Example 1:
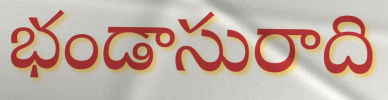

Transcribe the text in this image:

భండాసురాది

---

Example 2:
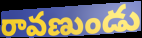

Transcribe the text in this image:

రావణుండు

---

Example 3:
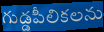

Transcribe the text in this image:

గుడ్డపీలికలను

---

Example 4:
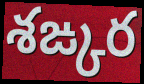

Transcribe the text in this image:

శఙ్కర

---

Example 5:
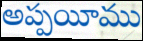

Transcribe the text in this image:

అప్పయీము